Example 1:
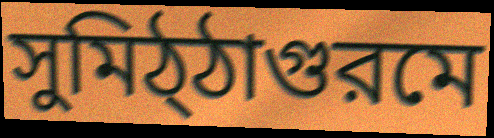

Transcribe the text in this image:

সুমিঠ্ঠাগুরমে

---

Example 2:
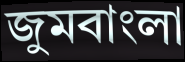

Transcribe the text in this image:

জুমবাংলা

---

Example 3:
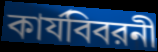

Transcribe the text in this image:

কার্যবিবরনী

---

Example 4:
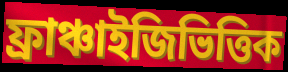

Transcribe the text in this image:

ফ্রাঞ্চাইজিভিত্তিক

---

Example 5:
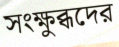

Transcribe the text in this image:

সংক্ষুব্ধদের